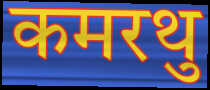
कमरथु